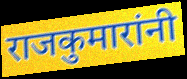
राजकुमारांनी